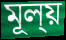
মূল্য়